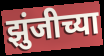
झुंजीच्या